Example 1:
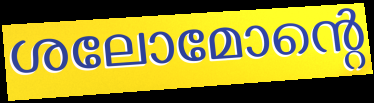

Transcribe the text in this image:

ശലോമോന്റെ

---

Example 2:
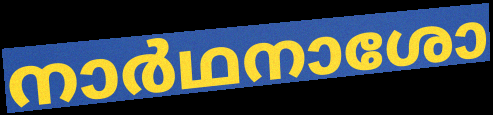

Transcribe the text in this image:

നാർഥനാശോ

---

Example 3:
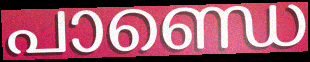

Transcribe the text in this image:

പാണ്ഡെ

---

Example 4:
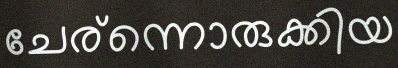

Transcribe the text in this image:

ചേര്ന്നൊരുക്കിയ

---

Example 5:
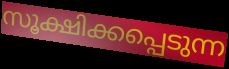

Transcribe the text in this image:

സൂക്ഷിക്കപ്പെടുന്ന